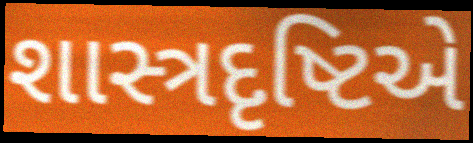
શાસ્ત્રદૃષ્ટિએ